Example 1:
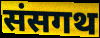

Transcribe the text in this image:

संसगथ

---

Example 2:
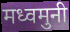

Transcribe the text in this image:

मध्वमुनी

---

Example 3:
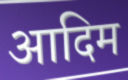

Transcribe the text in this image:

आदिम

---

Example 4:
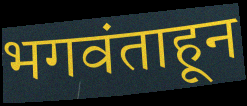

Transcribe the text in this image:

भगवंताहून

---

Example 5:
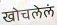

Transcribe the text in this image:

खोचलेलं